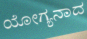
ಯೋಗ್ಯನಾದ